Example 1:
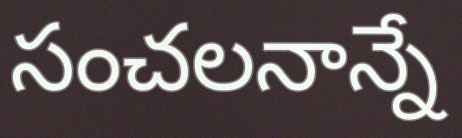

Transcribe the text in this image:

సంచలనాన్నే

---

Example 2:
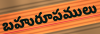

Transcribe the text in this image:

బహురూపములు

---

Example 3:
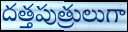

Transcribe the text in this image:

దత్తపుత్రులుగా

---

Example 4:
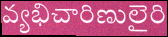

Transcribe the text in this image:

వ్యభిచారిణులైరి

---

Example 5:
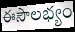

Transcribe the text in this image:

ఈసౌలభ్యం